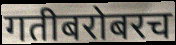
गतीबरोबरच